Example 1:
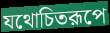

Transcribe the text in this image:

যথোচিতরূপে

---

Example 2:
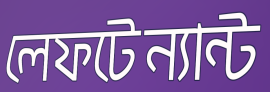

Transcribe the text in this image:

লেফটেন্যান্ট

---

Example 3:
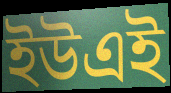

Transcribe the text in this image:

ইউএই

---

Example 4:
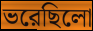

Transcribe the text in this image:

ভরেছিলো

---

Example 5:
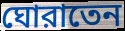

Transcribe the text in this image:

ঘোরাতেন